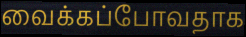
வைக்கப்போவதாக